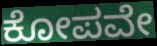
ಕೋಪವೇ